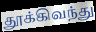
தூக்கிவந்து